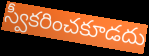
స్వీకరించకూడదు